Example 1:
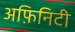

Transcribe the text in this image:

अफ़िनिटी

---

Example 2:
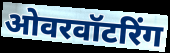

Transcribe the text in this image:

ओवरवॉटरिंग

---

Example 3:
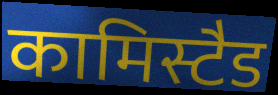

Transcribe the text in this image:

कामिस्टैड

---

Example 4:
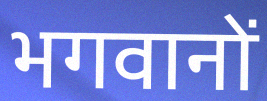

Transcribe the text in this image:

भगवानों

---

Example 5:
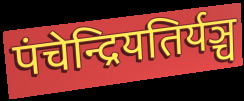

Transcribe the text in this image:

पंचेन्द्रियतिर्यञ्च